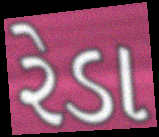
રેડા